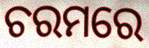
ଚରମରେ